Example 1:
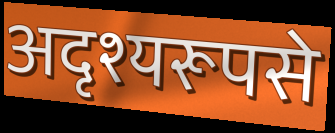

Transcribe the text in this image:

अदृश्यरूपसे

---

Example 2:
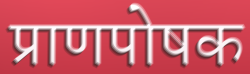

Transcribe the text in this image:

प्राणपोषक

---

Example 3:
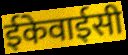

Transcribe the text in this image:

ईकेवाईसी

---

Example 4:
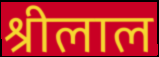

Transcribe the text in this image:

श्रीलाल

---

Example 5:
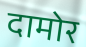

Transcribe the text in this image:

दामोर